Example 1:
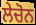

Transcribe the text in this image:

ਲੇਚੋਨ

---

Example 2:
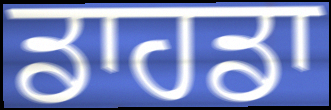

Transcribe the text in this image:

ਡਾਹਡਾ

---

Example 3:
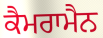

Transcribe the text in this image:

ਕੈਮਰਾਮੈਨ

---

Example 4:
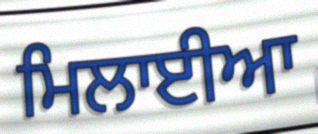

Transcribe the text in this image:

ਮਿਲਾਈਆ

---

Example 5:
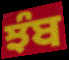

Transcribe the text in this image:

ਝੰਬ